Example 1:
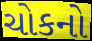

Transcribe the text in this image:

ચોકનો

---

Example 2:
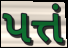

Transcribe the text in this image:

પત્તં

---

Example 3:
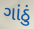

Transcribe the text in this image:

ગાંઠું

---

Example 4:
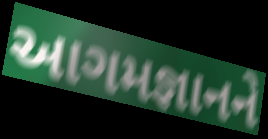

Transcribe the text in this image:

આગમજ્ઞાનને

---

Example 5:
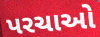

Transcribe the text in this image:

પરચાઓ